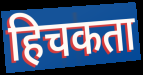
हिचकता